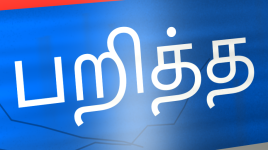
பறித்த